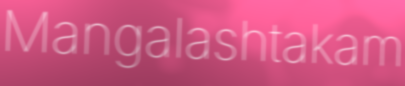
Mangalashtakam